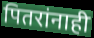
पितरांनाही